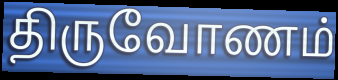
திருவோணம்